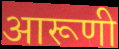
आरूणी